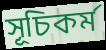
সূচিকৰ্ম